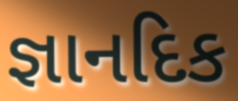
જ્ઞાનદિક